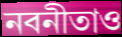
নবনীতাও